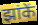
झांकें